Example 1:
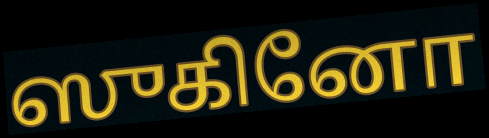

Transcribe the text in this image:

ஸுகினோ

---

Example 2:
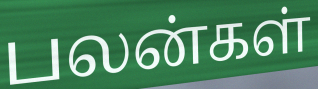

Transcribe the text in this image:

பலன்கள்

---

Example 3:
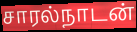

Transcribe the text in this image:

சாரல்நாடன்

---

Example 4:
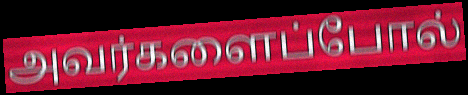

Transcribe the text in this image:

அவர்களைப்போல்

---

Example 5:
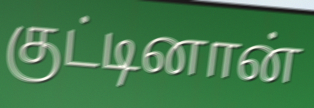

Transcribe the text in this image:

குட்டினான்